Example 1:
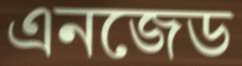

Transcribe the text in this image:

এনজেড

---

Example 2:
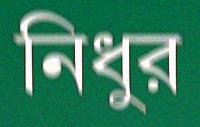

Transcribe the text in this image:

নিধুর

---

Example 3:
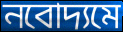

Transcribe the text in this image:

নবোদ্যমে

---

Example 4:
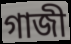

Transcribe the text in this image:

গাজী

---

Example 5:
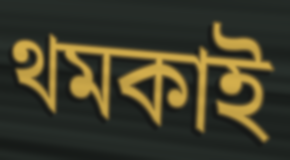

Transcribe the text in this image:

থমকাই